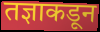
तज्ञाकडून